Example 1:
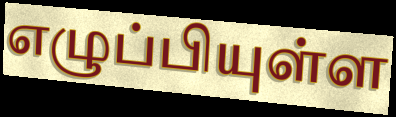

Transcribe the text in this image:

எழுப்பியுள்ள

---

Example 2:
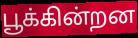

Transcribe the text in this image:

பூக்கின்றன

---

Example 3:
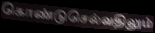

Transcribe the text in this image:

கொண்டுசெல்வதிலும்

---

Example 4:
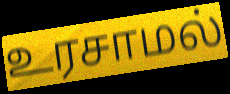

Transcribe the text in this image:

உரசாமல்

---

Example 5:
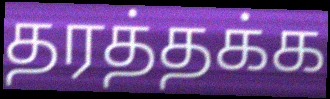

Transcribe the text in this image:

தரத்தக்க